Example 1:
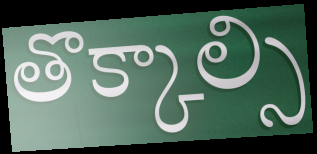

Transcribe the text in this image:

తొక్కాల్సి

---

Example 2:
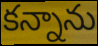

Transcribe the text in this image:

కన్నాను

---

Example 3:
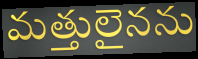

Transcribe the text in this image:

మత్తులైనను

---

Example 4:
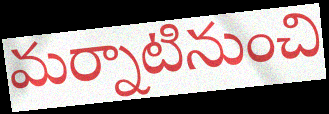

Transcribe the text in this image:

మర్నాటినుంచి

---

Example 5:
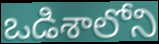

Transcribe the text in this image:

ఒడిశాలోని